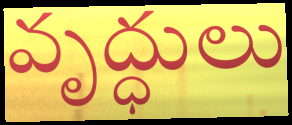
వృద్ధులు